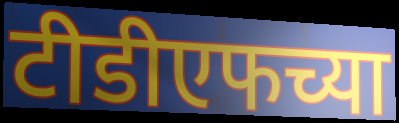
टीडीएफच्या